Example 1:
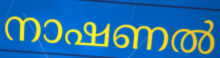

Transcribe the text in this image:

നാഷണൽ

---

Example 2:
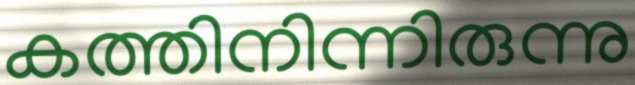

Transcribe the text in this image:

കത്തിനിന്നിരുന്നു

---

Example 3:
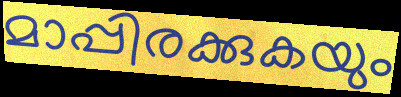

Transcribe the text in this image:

മാപ്പിരക്കുകയും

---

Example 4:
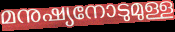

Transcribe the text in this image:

മനുഷ്യനോടുമുള്ള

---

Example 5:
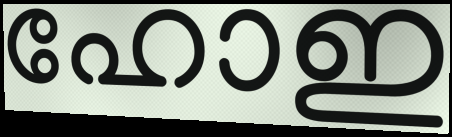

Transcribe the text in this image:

ഹോഇ